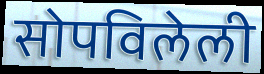
सोपविलेली